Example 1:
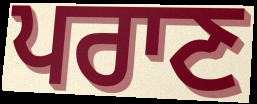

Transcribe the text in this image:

ਪਰਾਣ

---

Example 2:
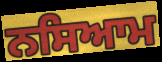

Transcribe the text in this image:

ਨਸਿਆਮ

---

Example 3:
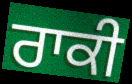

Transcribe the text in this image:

ਰਾਕੀ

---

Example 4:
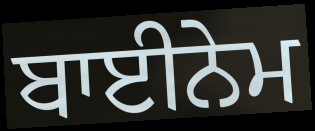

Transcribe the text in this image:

ਬਾਈਨੇਮ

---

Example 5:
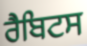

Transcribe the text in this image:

ਰੈਬਿਟਸ